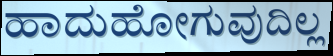
ಹಾದುಹೋಗುವುದಿಲ್ಲ